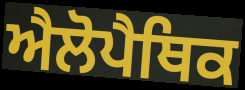
ਐਲੋਪੈਥਿਕ